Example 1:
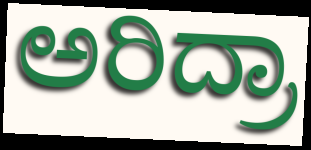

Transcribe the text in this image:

ಅರಿದ್ರಾ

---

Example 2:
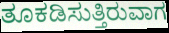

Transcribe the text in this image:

ತೂಕಡಿಸುತ್ತಿರುವಾಗ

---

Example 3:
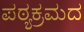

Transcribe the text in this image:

ಪಠ್ಯಕ್ರಮದ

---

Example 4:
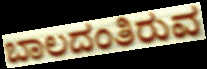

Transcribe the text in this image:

ಬಾಲದಂತಿರುವ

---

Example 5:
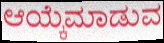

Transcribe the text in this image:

ಆಯ್ಕೆಮಾಡುವ